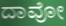
ದಾವೋ